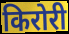
किरोरी